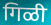
गिळी